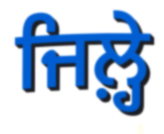
ਜਿਲ਼੍ਹੇ